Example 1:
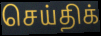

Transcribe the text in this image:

செய்திக்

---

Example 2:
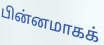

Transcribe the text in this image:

பின்னமாகக்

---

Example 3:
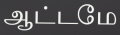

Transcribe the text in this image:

ஆட்டமே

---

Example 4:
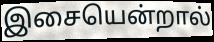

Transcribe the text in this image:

இசையென்றால்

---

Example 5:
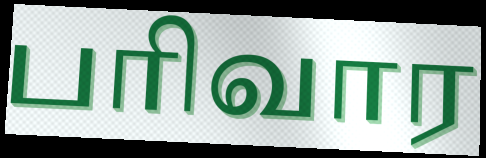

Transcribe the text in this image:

பரிவார